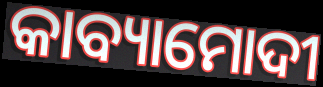
କାବ୍ୟାମୋଦୀ